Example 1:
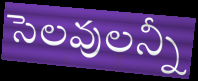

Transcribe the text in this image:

సెలవులన్నీ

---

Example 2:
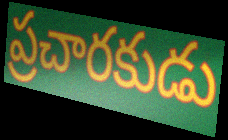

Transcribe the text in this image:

ప్రచారకుడు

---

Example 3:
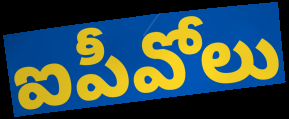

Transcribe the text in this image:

ఐపీవోలు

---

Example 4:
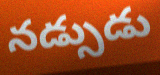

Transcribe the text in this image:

నడ్సుడు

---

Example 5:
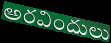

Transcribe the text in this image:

అరవిందులు